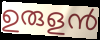
ഉരുളൻ